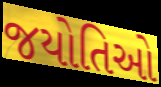
જયોતિઓ